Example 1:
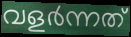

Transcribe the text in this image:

വളർന്നത്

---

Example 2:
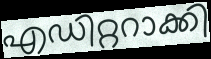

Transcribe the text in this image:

എഡിറ്ററാക്കി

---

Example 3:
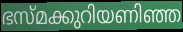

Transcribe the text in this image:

ഭസ്മക്കുറിയണിഞ്ഞ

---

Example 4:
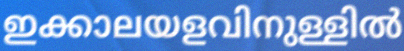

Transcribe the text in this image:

ഇക്കാലയളവിനുള്ളിൽ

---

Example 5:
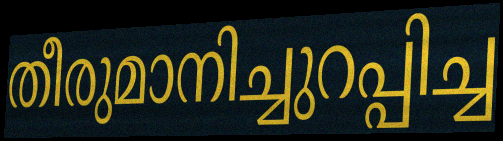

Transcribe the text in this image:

തീരുമാനിച്ചുറപ്പിച്ച